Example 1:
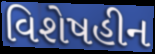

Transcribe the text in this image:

વિશેષહીન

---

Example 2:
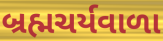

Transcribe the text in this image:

બ્રહ્મચર્યવાળા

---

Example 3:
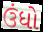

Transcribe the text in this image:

ઉંધો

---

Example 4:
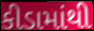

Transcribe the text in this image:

કીડામાંથી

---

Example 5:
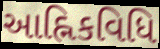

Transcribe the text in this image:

આહ્નિકવિધિ